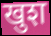
खुश